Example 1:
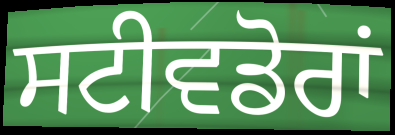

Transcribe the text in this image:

ਸਟੀਵਡੋਰਾਂ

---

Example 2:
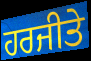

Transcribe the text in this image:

ਹਰਜੀਤੇ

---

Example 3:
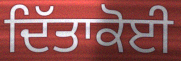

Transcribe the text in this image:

ਦਿੱਤਾਕੋਈ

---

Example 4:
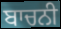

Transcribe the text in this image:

ਬਾਚਨੀ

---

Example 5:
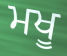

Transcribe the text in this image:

ਮਖੂ